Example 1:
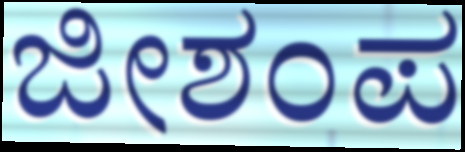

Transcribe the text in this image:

ಜೀಶಂಪ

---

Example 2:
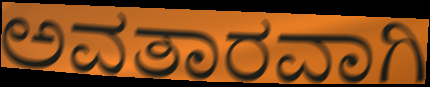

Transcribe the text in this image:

ಅವತಾರವಾಗಿ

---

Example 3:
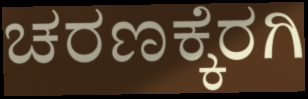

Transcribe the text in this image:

ಚರಣಕ್ಕೆರಗಿ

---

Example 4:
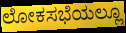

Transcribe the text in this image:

ಲೋಕಸಭೆಯಲ್ಲೂ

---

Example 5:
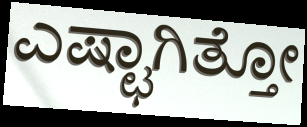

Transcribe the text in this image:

ಎಷ್ಟಾಗಿತ್ತೋ